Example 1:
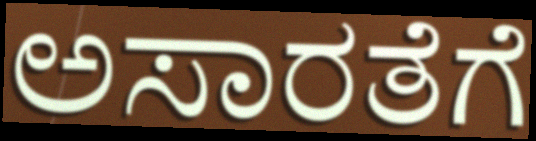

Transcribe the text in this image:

ಅಸಾರತೆಗೆ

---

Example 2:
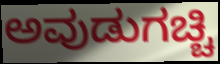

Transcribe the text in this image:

ಅವುಡುಗಚ್ಚಿ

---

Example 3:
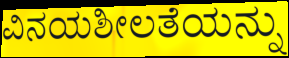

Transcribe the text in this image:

ವಿನಯಶೀಲತೆಯನ್ನು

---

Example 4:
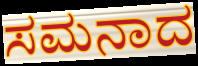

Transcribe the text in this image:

ಸಮನಾದ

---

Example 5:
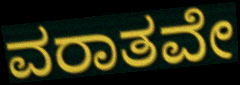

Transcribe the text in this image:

ವರಾತವೇ